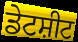
ਡੇਟਸ਼ੀਟ